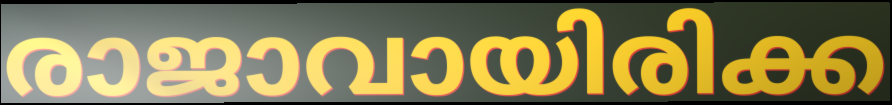
രാജാവായിരിക്ക